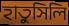
হাতুসিলি